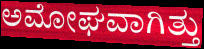
ಅಮೋಘವಾಗಿತ್ತು